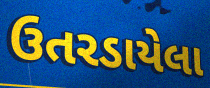
ઉતરડાયેલા